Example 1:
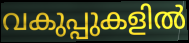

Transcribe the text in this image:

വകുപ്പുകളിൽ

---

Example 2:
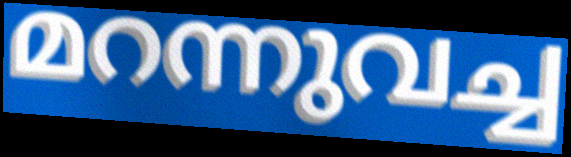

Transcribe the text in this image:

മറന്നുവച്ച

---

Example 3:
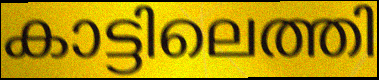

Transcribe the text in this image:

കാട്ടിലെത്തി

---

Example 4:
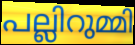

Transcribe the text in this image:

പല്ലിറുമ്മി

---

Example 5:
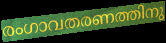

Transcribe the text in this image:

രംഗാവതരണത്തിനു